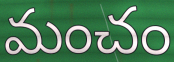
మంచం